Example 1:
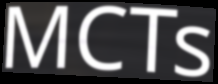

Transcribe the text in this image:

MCTs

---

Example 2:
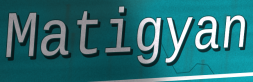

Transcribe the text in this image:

Matigyan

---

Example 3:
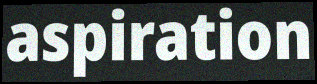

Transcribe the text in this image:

aspiration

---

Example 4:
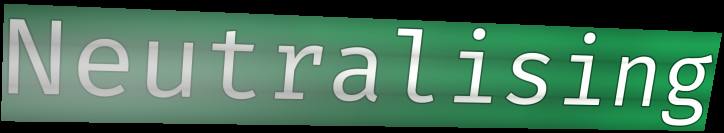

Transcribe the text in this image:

Neutralising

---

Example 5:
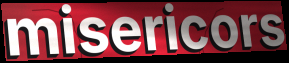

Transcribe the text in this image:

misericors